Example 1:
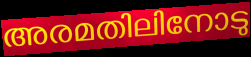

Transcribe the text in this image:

അരമതിലിനോടു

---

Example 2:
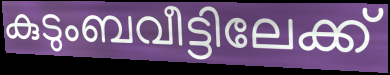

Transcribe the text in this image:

കുടുംബവീട്ടിലേക്ക്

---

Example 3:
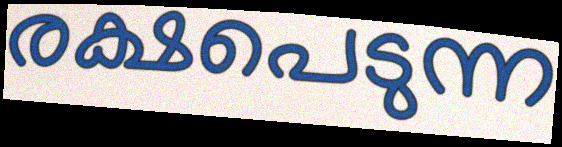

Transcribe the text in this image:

രക്ഷപെടുന്ന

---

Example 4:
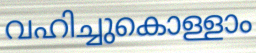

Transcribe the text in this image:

വഹിച്ചുകൊള്ളാം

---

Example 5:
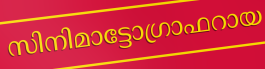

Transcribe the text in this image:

സിനിമാട്ടോഗ്രാഫറായ